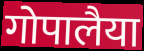
गोपालैया